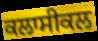
ਕਲਾਸੀਕਲ